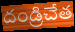
దండ్రిచేత